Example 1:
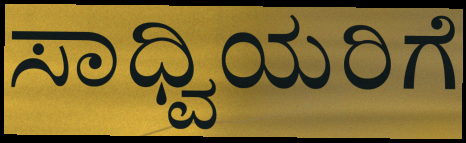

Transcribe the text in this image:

ಸಾಧ್ವಿಯರಿಗೆ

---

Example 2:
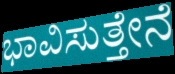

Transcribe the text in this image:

ಭಾವಿಸುತ್ತೇನೆ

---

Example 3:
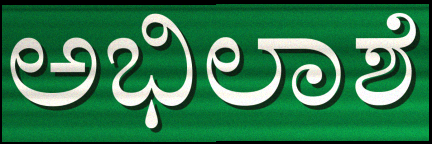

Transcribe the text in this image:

ಅಭಿಲಾಶೆ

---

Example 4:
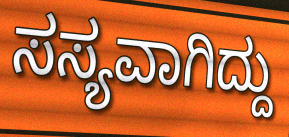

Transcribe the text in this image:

ಸಸ್ಯವಾಗಿದ್ದು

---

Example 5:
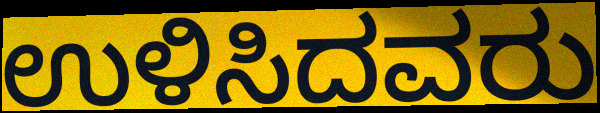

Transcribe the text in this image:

ಉಳಿಸಿದವರು